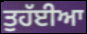
ਤੁਹੱਈਆ